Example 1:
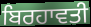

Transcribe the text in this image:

ਬਿਰਹਾਵਤੀ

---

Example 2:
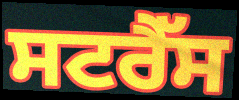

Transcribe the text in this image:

ਸਟਰੈੱਸ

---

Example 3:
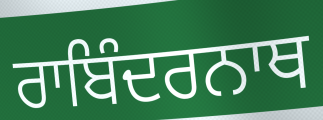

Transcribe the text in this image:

ਰਾਬਿੰਦਰਨਾਥ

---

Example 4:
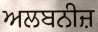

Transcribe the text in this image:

ਅਲਬਨੀਜ਼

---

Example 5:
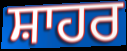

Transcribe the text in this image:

ਸ਼ਾਹਰ